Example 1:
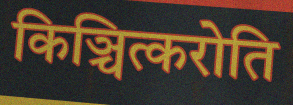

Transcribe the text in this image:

किञ्चित्करोति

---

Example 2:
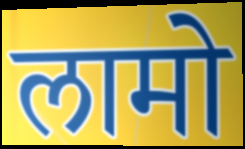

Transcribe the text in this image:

लामो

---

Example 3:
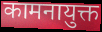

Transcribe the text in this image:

कामनायुक्त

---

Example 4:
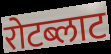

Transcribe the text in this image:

रोटब्लाट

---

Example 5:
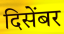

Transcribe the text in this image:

दिसेंबर